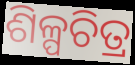
ଶିଳ୍ପଚିତ୍ର